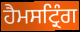
ਹੈਮਸਟ੍ਰਿੰਗ